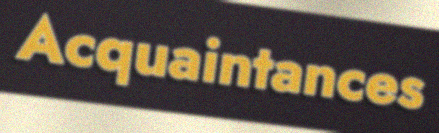
Acquaintances